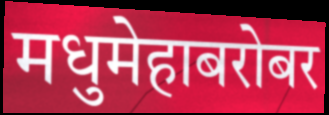
मधुमेहाबरोबर